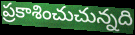
ప్రకాశించుచున్నది